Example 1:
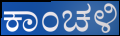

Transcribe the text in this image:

ಕಾಂಚಳಿ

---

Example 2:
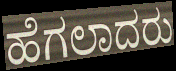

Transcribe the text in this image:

ಹೆಗಲಾದರು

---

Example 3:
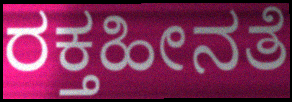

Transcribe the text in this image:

ರಕ್ತಹೀನತೆ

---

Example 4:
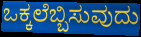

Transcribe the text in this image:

ಒಕ್ಕಲೆಬ್ಬಿಸುವುದು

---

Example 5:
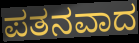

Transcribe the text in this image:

ಪತನವಾದ